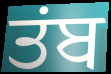
ਤਂਬ